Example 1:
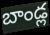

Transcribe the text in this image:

బాండ్ల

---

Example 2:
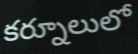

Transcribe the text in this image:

కర్నూలులో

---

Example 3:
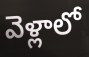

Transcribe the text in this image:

వెళ్లాలో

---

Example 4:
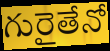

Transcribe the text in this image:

గురైతేనో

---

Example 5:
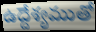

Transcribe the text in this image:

ఉద్దేశ్యముతో